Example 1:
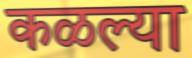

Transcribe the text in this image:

कळल्या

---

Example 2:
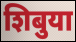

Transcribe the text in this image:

शिबुया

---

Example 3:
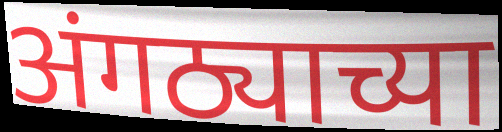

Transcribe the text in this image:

अंगठ्याच्या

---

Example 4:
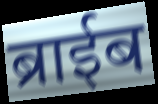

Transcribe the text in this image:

ब्राईब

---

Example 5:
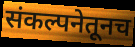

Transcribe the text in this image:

संकल्पनेतूनच